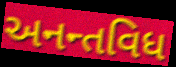
અનન્તવિધ